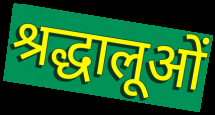
श्रद्धालूओं